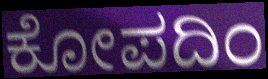
ಕೋಪದಿಂ